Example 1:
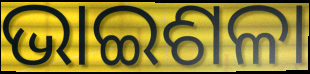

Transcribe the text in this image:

ଭାଇଶଳା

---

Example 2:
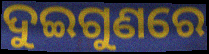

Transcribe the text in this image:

ଦୁଇଗୁଣରେ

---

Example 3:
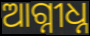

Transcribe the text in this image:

ଆଗ୍ନୀଧ୍ନ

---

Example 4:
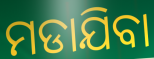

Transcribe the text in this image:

ମଡାଯିବା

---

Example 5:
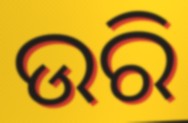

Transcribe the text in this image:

ଉରି